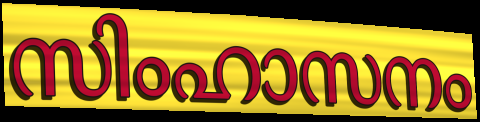
സിംഹാസനം